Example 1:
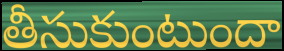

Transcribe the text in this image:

తీసుకుంటుందా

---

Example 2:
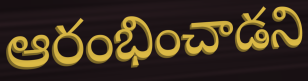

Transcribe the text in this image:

ఆరంభించాడని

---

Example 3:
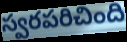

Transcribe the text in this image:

స్వరపరిచింది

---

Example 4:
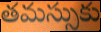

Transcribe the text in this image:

తమస్సుకు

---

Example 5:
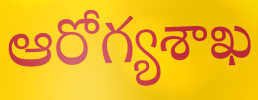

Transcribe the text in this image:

ఆరోగ్యశాఖ